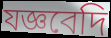
যজ্ঞবেদি